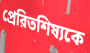
প্রেরিতশিষ্যকে